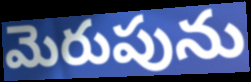
మెరుపును